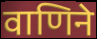
वाणिने